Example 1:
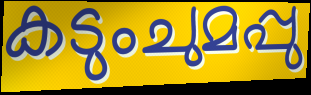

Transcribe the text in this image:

കടുംചുമപ്പു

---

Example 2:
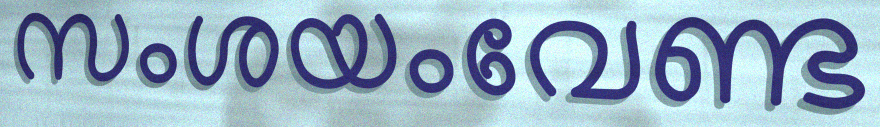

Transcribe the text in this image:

സംശയംവേണ്ട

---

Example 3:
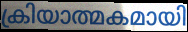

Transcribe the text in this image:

ക്രിയാത്മകമായി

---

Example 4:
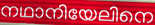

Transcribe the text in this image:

നഥാനിയേലിനെ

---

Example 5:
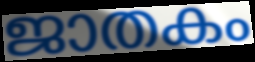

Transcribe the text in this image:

ജാതകം